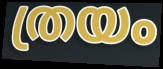
ത്രയം